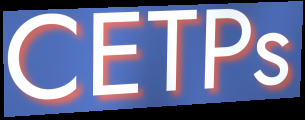
CETPs